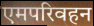
एमपरिवहन